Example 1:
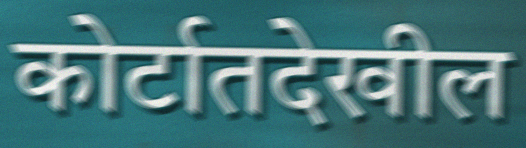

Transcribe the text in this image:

कोर्टातदेखील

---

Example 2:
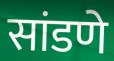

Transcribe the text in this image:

सांडणे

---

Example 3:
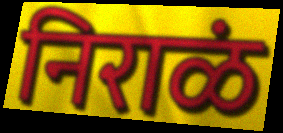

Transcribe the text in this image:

निराळं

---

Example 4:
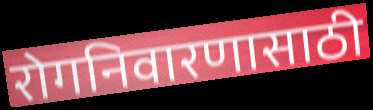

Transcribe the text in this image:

रोगनिवारणासाठी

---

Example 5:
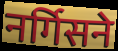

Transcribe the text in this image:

नर्गिसने